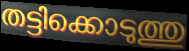
തട്ടിക്കൊടുത്തു